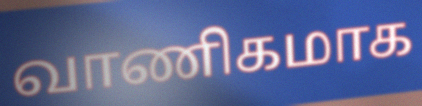
வாணிகமாக